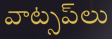
వాట్సప్‌లు